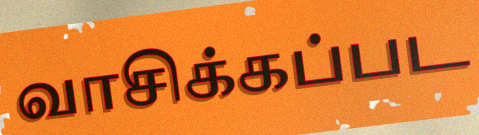
வாசிக்கப்பட